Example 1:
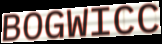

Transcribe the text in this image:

BOGWICC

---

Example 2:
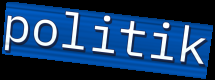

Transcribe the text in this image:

politik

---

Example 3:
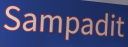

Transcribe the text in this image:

Sampadit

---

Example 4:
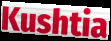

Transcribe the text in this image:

Kushtia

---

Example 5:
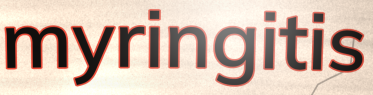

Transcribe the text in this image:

myringitis